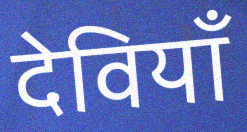
देवियाँ